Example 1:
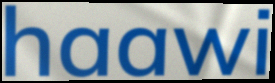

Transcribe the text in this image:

haawi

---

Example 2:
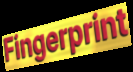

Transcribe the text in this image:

Fingerprint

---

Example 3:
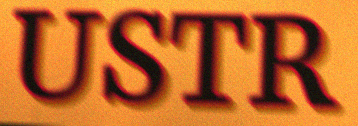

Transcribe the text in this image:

USTR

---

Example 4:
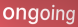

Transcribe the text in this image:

ongoing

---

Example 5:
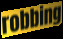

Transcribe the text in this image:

robbing